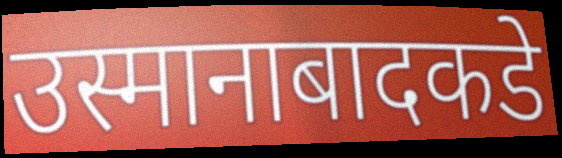
उस्मानाबादकडे